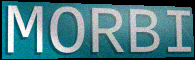
MORBI